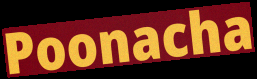
Poonacha